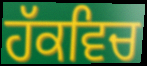
ਹੱਕਵਿਚ